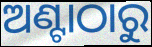
ଅଣ୍ଟାଠାରୁ